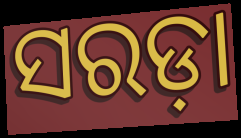
ସରଡ଼ା